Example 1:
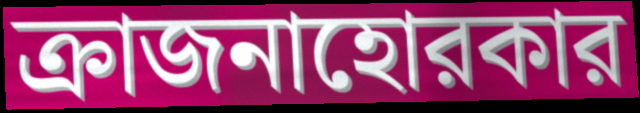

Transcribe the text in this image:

ক্রাজনাহোরকার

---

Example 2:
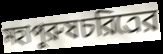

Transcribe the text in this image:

মহাপুরুষচরিত্রের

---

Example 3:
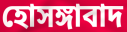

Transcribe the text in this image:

হোসঙ্গাবাদ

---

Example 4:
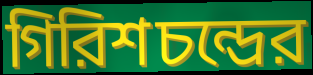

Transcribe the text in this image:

গিরিশচন্দ্রের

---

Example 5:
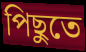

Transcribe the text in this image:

পিছুতে